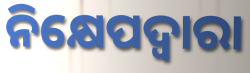
ନିକ୍ଷେପଦ୍ୱାରା